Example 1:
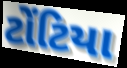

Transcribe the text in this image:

ટોંટિયા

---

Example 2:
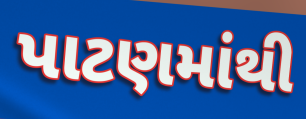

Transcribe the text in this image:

પાટણમાંથી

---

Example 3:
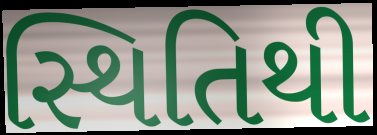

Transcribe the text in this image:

સ્થિતિથી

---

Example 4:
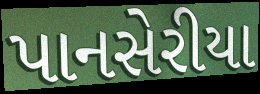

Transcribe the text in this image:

પાનસેરીયા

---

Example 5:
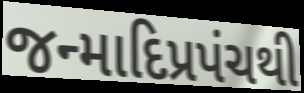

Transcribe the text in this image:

જન્માદિપ્રપંચથી